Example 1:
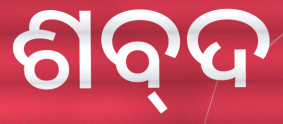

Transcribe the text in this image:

ଶବ୍‍ଦ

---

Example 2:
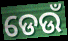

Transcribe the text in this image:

ଡେଉଁ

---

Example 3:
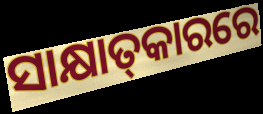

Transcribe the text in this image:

ସାକ୍ଷାତ୍‌କାରରେ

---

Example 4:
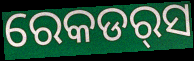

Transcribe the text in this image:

ରେକଡର୍‌ସ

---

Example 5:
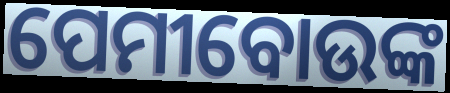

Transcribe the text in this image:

ପେମୀବୋଉଙ୍କ